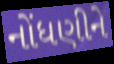
નોંધણીને